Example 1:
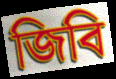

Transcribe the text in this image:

জিবি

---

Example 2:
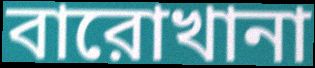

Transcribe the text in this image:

বারোখানা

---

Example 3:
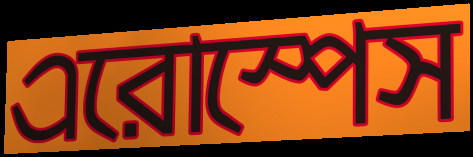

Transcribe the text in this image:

এরোস্পেস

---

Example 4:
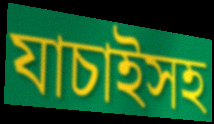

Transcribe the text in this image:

যাচাইসহ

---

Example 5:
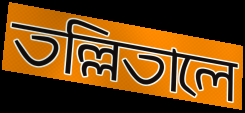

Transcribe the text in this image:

তল্লিতালে